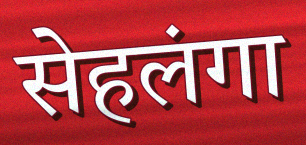
सेहलंगा